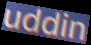
uddin